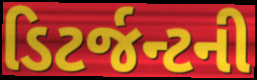
ડિટર્જન્ટની